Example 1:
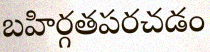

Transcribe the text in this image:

బహిర్గతపరచడం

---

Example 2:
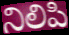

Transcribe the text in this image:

నిలిపి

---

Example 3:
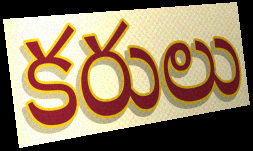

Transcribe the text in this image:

కరులు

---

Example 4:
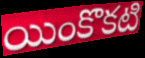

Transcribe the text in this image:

యింకొకటి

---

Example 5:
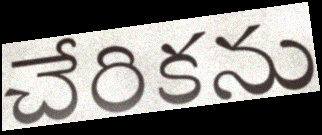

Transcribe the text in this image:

చేరికను